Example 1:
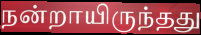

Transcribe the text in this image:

நன்றாயிருந்தது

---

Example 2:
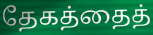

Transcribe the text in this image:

தேகத்தைத்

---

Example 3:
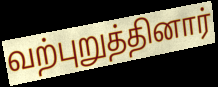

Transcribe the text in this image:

வற்புறுத்தினார்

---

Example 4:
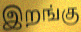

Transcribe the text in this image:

இறங்கு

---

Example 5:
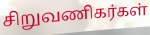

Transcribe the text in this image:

சிறுவணிகர்கள்